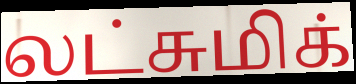
லட்சுமிக்